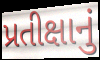
પ્રતીક્ષાનું